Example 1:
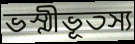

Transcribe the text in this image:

ভস্মীভূতস্য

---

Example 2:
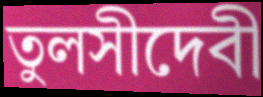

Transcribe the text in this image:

তুলসীদেবী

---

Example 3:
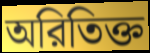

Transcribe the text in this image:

অরিতিক্ত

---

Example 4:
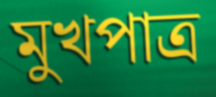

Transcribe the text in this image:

মুখপাত্র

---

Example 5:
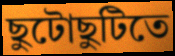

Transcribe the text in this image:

ছুটোছুটিতে